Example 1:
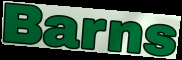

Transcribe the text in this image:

Barns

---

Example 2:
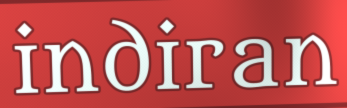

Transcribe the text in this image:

indiran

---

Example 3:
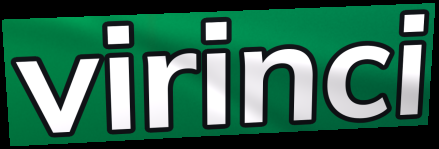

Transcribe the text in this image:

virinci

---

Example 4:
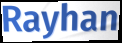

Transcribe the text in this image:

Rayhan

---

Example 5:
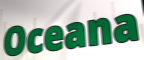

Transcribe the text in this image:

Oceana